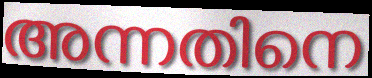
അന്നതിനെ